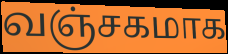
வஞ்சகமாக